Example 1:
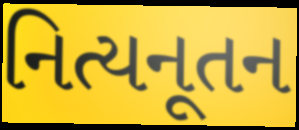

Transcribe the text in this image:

નિત્યનૂતન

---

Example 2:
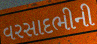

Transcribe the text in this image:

વરસાદભીની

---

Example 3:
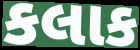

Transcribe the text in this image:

કલાક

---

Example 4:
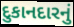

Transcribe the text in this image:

દુકાનદારનું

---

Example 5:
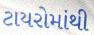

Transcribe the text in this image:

ટાયરોમાંથી